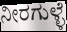
ನೀರಗುಳ್ಳೆ